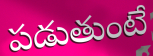
పడుతుంటే